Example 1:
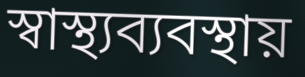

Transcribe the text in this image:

স্বাস্থ্যব্যবস্থায়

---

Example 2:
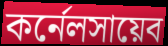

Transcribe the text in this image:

কর্নেলসায়েব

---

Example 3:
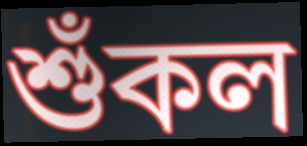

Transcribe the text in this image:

শুঁকল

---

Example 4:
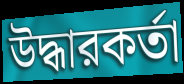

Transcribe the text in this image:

উদ্ধারকর্তা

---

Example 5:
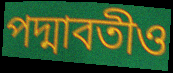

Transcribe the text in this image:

পদ্মাবতীও